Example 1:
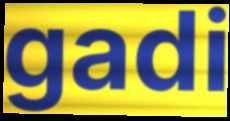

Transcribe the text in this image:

gadi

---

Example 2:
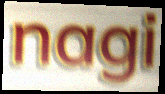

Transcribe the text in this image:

nagi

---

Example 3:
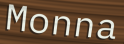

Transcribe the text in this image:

Monna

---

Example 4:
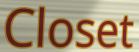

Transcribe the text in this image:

Closet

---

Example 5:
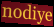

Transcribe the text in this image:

nodiye